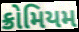
ક્રોમિયમ